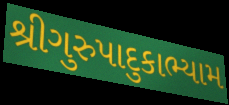
શ્રીગુરુપાદુકાભ્યામ